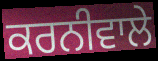
ਕਰਨੀਵਾਲੇ